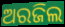
ଅରଜିଲ